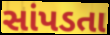
સાંપડતા